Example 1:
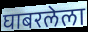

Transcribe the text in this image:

घाबरलेला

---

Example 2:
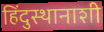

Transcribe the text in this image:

हिंदुस्थानाशी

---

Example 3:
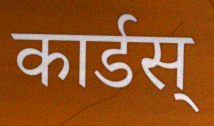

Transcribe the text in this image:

कार्डस्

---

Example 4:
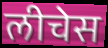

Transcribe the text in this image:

लीचेस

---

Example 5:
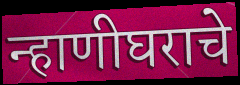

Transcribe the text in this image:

न्हाणीघराचे